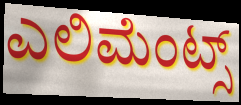
ಎಲಿಮೆಂಟ್ಸ್